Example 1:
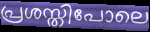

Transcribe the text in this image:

പ്രശസ്തിപോലെ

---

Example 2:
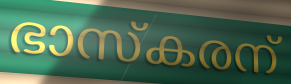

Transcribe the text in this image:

ഭാസ്‌കരന്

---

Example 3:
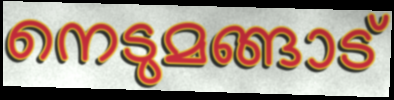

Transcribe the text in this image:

നെടുമങ്ങാട്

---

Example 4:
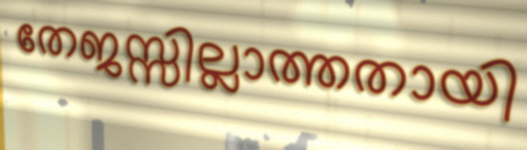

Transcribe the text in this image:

തേജസ്സില്ലാത്തതായി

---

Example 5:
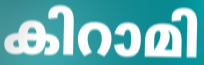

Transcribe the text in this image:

കിറാമി